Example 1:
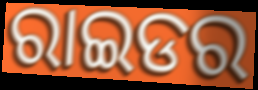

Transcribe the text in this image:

ରାଇଡର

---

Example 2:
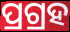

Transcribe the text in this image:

ପ୍ରଗ୍ରହ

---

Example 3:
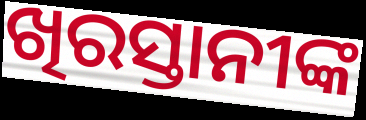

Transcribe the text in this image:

ଖିରସ୍ତାନୀଙ୍କ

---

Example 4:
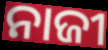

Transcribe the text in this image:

ନାଜୀ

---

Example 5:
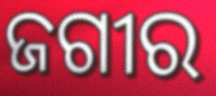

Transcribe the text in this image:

ଜଗୀର